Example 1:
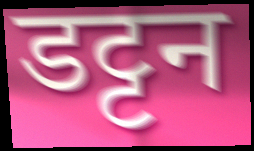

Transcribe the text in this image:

डट्टन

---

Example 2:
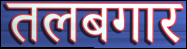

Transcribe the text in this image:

तलबगार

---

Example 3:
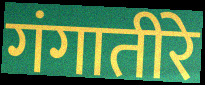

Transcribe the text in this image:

गंगातीरे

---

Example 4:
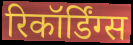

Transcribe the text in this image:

रिकॉर्डिंग्स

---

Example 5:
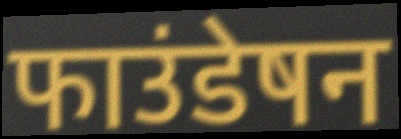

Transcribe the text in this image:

फाउंडेषन